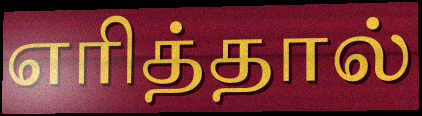
எரித்தால்